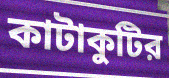
কাটাকুটির